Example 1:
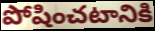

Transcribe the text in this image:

పోషించటానికి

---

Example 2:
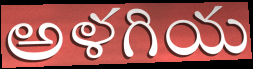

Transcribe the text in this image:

అళగియ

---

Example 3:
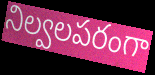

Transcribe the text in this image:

నిల్వలపరంగా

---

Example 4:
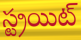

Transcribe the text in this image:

స్ట్రయిట్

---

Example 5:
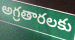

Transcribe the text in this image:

అగ్రతారలకు